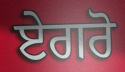
ਏਗਰੋ